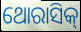
ଥୋରାସିକ୍